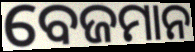
ବେଜମାନ